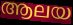
ആലയ